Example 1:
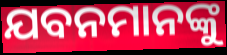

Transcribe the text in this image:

ଯବନମାନଙ୍କୁ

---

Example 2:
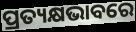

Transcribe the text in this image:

ପ୍ରତ୍ୟକ୍ଷଭାବରେ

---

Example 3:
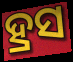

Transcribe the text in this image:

ହ୍ରସ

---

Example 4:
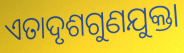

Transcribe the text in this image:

ଏତାଦୃଶଗୁଣଯୁକ୍ତା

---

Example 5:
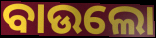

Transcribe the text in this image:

ବାଉଲୋ